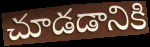
చూడడానికి